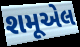
શમૂએલ